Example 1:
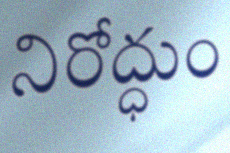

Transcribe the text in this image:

నిరోద్ధుం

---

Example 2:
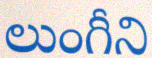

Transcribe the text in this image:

లుంగీని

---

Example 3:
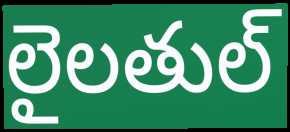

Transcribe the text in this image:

లైలతుల్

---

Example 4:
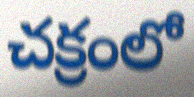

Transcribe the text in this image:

చక్రంలో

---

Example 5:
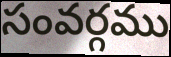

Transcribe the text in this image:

సంవర్గము